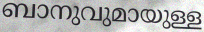
ബാനുവുമായുള്ള